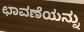
ಛಾವಣೆಯನ್ನು